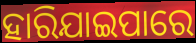
ହାରିଯାଇପାରେ